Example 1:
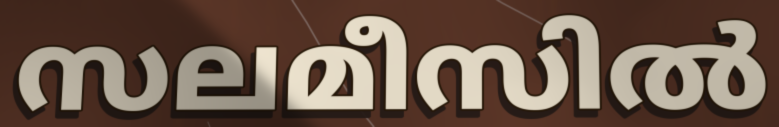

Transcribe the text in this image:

സലമീസിൽ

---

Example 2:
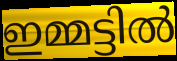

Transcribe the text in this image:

ഇമ്മട്ടിൽ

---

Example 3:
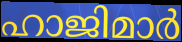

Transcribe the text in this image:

ഹാജിമാർ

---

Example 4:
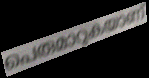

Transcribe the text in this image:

പെരുമാറുകയാണ്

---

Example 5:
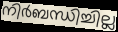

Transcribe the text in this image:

നിർബന്ധിച്ചില്ല